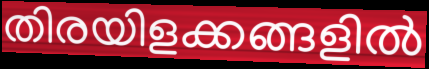
തിരയിളക്കങ്ങളിൽ